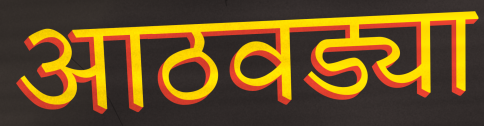
आठवड्या